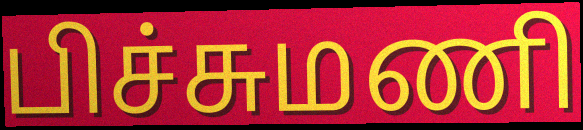
பிச்சுமணி